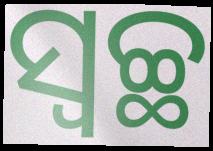
ସ୍ଵଚ୍ଛ